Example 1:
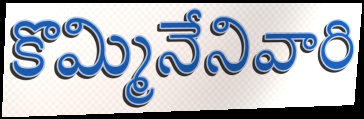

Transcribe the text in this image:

కొమ్మినేనివారి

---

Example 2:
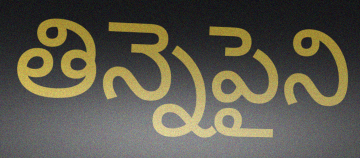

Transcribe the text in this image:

తిన్నెపైని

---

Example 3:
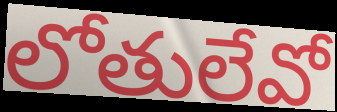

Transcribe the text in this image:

లోతులేవో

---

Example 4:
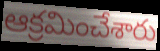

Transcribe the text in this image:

ఆక్రమించేశారు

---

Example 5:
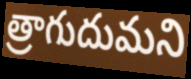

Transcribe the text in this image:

త్రాగుదుమని